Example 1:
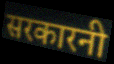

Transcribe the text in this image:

सरकारनी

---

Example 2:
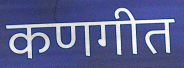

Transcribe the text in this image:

कणगीत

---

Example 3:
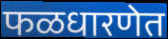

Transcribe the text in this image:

फळधारणेत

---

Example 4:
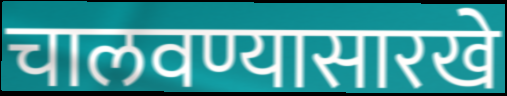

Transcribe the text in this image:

चालवण्यासारखे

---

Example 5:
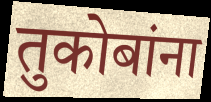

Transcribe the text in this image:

तुकोबांना